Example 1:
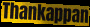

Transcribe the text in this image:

Thankappan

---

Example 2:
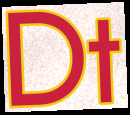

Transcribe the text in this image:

Dt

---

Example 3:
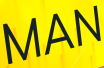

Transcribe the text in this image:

MAN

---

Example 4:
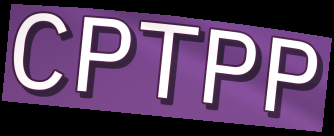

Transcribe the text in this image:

CPTPP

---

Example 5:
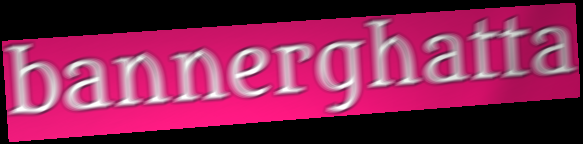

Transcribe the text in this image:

bannerghatta